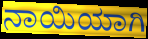
ನಾಯಿಯಾಗಿ